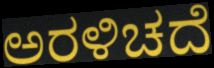
ಅರಳಿಚದೆ